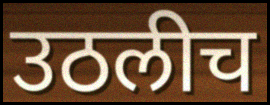
उठलीच